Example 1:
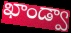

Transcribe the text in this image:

ఖాండ్వా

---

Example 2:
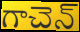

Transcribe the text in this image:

గాచెన్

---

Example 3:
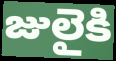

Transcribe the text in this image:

జులైకి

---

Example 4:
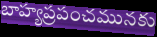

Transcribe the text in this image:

బాహ్యప్రపంచమునకు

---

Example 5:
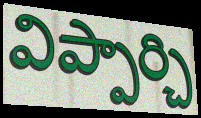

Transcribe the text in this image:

విప్పార్చి